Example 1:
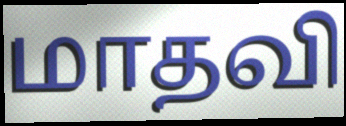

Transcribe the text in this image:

மாதவி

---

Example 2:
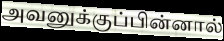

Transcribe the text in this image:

அவனுக்குப்பின்னால்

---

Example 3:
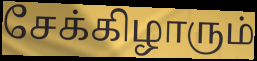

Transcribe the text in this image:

சேக்கிழாரும்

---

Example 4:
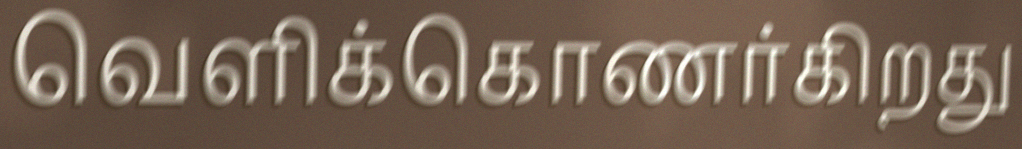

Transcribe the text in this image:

வெளிக்கொணர்கிறது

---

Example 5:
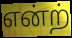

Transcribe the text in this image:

என்ற்